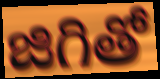
జిగితో